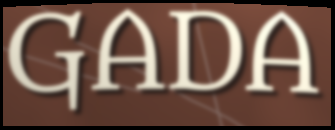
GADA